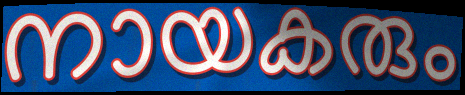
നായകരും